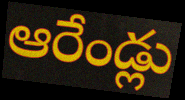
ఆరేండ్లు